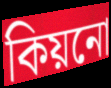
কিয়নো